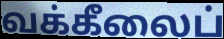
வக்கீலைப்